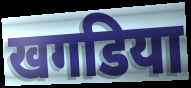
खगडिया